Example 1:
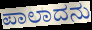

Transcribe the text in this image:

ಪಾಲಾದನು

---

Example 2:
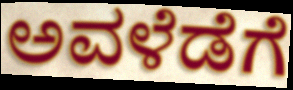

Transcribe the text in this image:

ಅವಳೆಡೆಗೆ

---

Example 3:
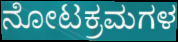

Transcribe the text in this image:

ನೋಟಕ್ರಮಗಳ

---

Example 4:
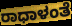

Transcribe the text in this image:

ರಾಧಾಳಂತೆ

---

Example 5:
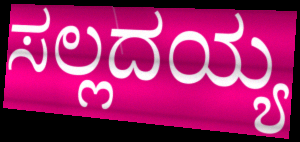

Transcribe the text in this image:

ಸಲ್ಲದಯ್ಯ